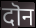
दॊन